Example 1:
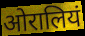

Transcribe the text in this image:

ओरालियं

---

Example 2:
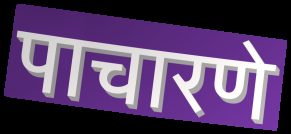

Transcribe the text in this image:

पाचारणे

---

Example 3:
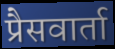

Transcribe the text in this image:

प्रैसवार्ता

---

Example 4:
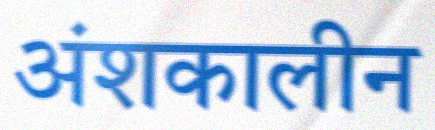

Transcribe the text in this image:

अंशकालीन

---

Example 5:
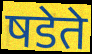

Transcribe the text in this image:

षडेते